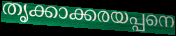
തൃക്കാക്കരയപ്പനെ